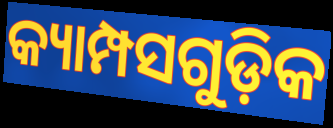
କ୍ୟାମ୍ପସଗୁଡ଼ିକ